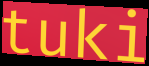
tuki